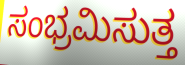
ಸಂಭ್ರಮಿಸುತ್ತ